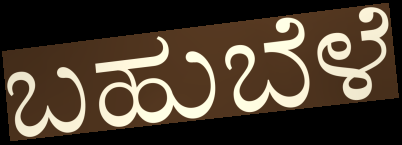
ಬಹುಬೆಳೆ